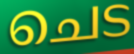
ചെട